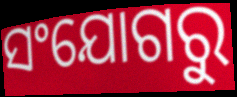
ସଂଯୋଗରୁ